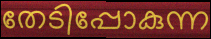
തേടിപ്പോകുന്ന